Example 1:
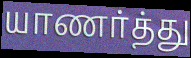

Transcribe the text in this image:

யாணர்த்து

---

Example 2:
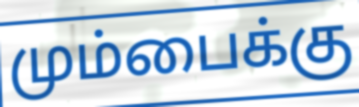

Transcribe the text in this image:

மும்பைக்கு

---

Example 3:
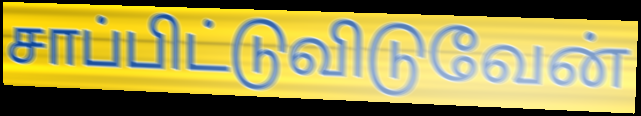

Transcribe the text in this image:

சாப்பிட்டுவிடுவேன்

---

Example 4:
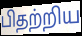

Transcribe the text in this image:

பிதற்றிய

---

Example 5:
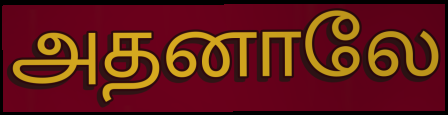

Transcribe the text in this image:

அதனாலே